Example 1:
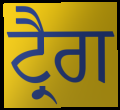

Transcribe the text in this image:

ਟ੍ਰੈਗ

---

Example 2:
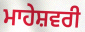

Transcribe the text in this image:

ਮਾਹੇਸ਼ਵਰੀ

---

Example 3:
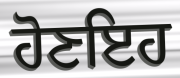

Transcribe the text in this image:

ਹੋਣਇਹ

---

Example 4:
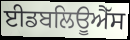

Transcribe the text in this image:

ਈਡਬਲਿਊਐੱਸ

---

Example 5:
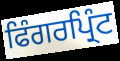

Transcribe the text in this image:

ਫਿੰਗਰਪ੍ਰਿੰਟ